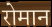
रोमान